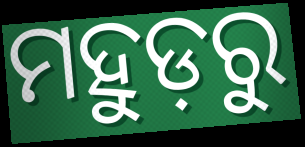
ମହୁଡ଼ରୁ